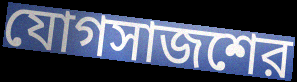
যোগসাজশের